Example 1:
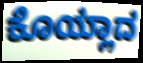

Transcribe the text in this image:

ಕೊಯ್ಲಾದ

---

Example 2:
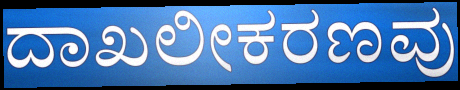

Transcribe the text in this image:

ದಾಖಲೀಕರಣವು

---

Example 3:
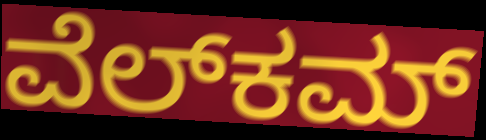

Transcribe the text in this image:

ವೆಲ್‍ಕಮ್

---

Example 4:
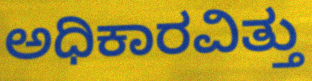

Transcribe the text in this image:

ಅಧಿಕಾರವಿತ್ತು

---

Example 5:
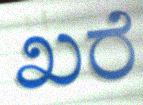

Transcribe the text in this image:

ಖರೆ